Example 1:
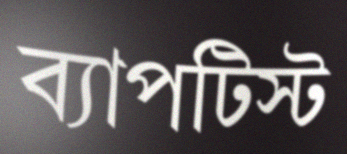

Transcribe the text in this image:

ব্যাপটিস্ট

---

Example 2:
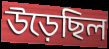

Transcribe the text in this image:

উড়েছিল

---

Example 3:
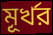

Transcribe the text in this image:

মূর্খর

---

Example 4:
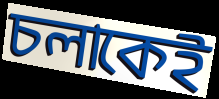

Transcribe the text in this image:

চলাকেই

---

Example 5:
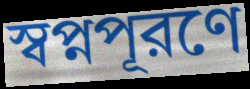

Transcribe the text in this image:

স্বপ্নপূরণে